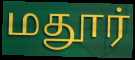
மதூர்